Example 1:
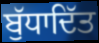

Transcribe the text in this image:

ਬੁੱਧਾਦਿੱਤ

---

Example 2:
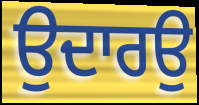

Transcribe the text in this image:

ਉਦਾਰਉ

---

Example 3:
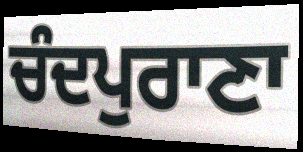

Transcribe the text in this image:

ਚੰਦਪੁਰਾਣਾ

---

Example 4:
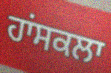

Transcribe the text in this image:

ਹਾਂਸਕਲਾ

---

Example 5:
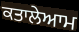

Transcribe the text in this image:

ਕਤਾਲੇਆਮ